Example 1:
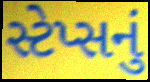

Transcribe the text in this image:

સ્ટેપ્સનું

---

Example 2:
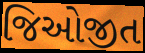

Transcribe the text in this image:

જિઓજીત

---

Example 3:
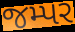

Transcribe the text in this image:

જમ્પર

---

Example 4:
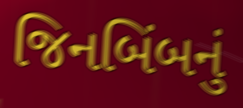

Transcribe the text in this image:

જિનબિંબનું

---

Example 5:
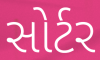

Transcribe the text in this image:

સોર્ટર